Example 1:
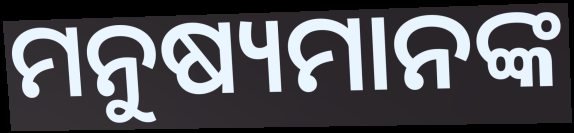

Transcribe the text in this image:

ମନୁଷ୍ୟମାନଙ୍କ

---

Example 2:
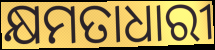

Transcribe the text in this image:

କ୍ଷମତାଧାରୀ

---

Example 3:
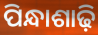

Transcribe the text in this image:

ପିନ୍ଧାଶାଢ଼ି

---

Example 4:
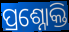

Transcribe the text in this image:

ପ୍ରଶ୍ନୋକ୍ତି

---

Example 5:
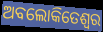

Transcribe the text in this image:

ଅବଲୋକିତେଶ୍ୱର